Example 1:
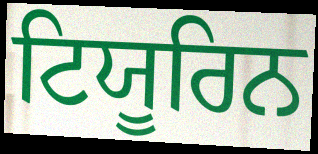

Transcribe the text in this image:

ਟਿਯੂਰਿਨ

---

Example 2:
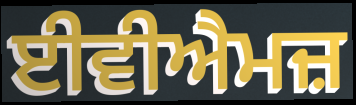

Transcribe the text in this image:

ਈਵੀਐਮਜ਼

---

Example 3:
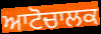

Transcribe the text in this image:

ਆਟੋਚਾਲਕ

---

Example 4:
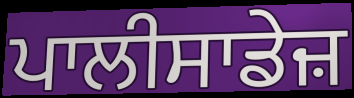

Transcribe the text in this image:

ਪਾਲੀਸਾਡੇਜ਼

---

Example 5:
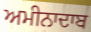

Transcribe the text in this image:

ਅਮੀਨਾਦਾਬ